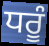
ਧਰੂੰ